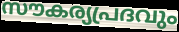
സൗകര്യപ്രദവും